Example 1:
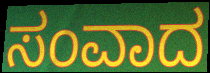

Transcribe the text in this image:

ಸಂವಾದ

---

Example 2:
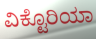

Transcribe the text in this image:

ವಿಕ್ಟೊರಿಯಾ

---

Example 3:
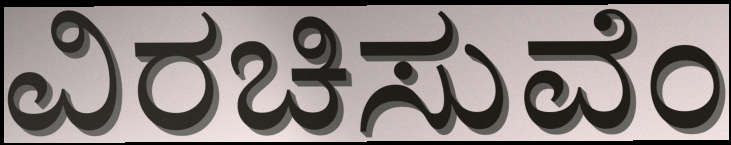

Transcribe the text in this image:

ವಿರಚಿಸುವೆಂ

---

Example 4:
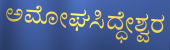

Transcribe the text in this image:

ಅಮೋಘಸಿದ್ಧೇಶ್ವರ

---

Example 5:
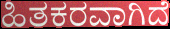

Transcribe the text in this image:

ಹಿತಕರವಾಗಿದೆ